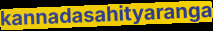
kannadasahityaranga